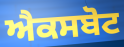
ਐਕਸਬੋਟ